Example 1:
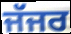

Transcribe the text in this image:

ਜੱਜਰ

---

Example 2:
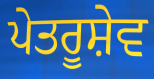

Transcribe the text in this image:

ਪੇਤਰੂਸ਼ੇਵ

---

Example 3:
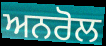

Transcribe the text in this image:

ਅਨਰੋਲ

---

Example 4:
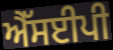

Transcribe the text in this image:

ਐੱਸਈਪੀ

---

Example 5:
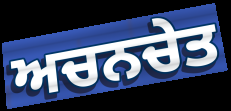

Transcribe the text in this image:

ਅਚਨਚੇਤ